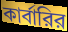
কার্বারির